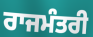
ਰਾਜਮੰਤਰੀ